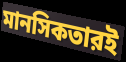
মানসিকতারই